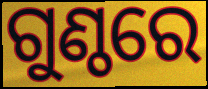
ଗୁଣ୍ଠରେ